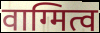
वाग्मित्व